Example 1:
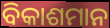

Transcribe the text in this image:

ବିକାଶମାନ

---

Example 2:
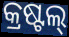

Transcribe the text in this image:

କ୍ରଷ୍ଟଲ୍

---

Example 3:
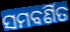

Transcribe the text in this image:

ସମବର୍ଣିତ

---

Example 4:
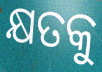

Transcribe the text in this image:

କ୍ଷତକୁ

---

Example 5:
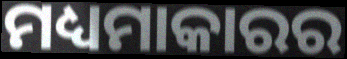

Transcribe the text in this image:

ମଧ୍ୟମାକାରର